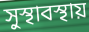
সুস্থাবস্থায়